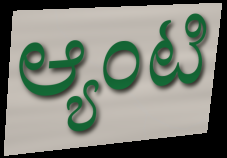
ಆ್ಯಂಟಿ